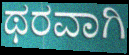
ಥರವಾಗಿ